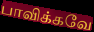
பாவிக்கவே